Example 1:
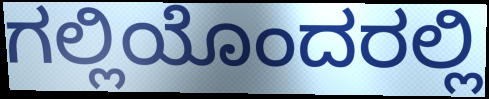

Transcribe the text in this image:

ಗಲ್ಲಿಯೊಂದರಲ್ಲಿ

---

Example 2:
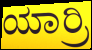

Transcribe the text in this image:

ಯಾರ್ರಿ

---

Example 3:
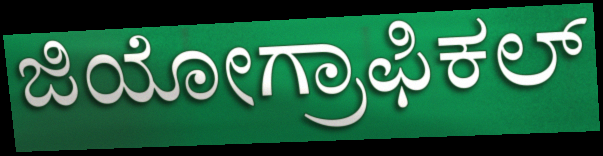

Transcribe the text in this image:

ಜಿಯೋಗ್ರಾಫಿಕಲ್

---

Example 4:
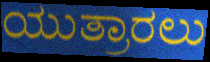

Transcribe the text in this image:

ಯುತ್ರಾರಲು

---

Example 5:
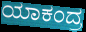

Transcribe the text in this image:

ಯಾಕಂದ್ರ